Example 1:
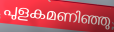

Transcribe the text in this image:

പുളകമണിഞ്ഞു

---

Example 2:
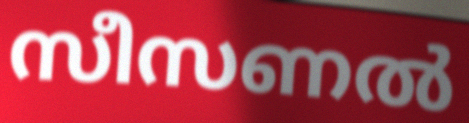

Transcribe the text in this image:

സീസണൽ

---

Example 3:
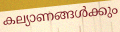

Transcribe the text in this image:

കല്യാണങ്ങൾക്കും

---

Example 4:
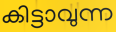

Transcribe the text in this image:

കിട്ടാവുന്ന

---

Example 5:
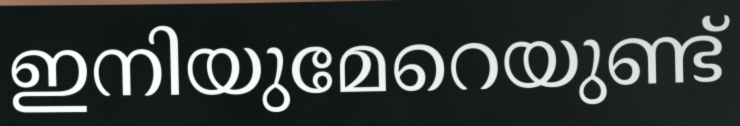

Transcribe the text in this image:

ഇനിയുമേറെയുണ്ട്